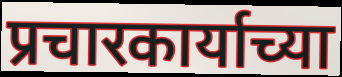
प्रचारकार्याच्या